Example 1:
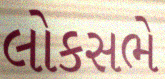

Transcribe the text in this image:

લોકસભે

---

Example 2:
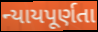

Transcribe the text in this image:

ન્યાયપૂર્ણતા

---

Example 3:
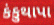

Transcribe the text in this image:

કંકુથાપા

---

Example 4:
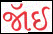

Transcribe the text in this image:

જૉઈ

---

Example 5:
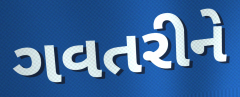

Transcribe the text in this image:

ગવતરીને